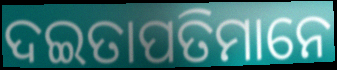
ଦଇତାପତିମାନେ